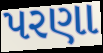
પરણા